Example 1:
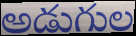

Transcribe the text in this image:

అడుగుల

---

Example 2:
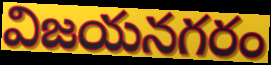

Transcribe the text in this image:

విజయనగరం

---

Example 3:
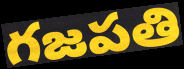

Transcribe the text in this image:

గజపతి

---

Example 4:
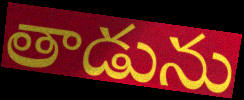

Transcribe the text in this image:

తాడును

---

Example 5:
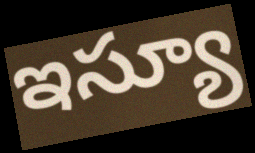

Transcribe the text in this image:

ఇస్యూ